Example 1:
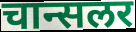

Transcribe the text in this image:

चान्सलर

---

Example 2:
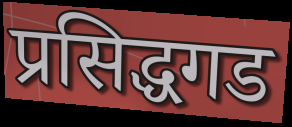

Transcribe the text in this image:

प्रसिद्धगड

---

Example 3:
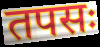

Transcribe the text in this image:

तपसः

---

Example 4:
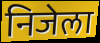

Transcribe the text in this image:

निजेला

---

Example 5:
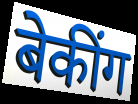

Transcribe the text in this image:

बेकींग